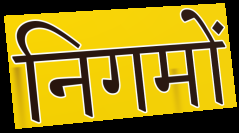
निगमों